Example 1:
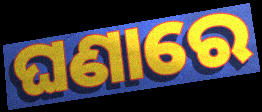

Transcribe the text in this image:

ଘଣାରେ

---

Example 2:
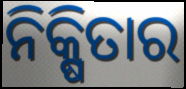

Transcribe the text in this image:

ନିକ୍ଷିତାର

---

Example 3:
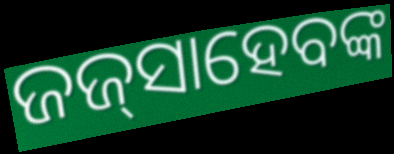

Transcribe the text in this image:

ଜଜ୍‌ସାହେବଙ୍କ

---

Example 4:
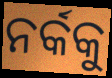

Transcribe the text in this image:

ନର୍କକୁ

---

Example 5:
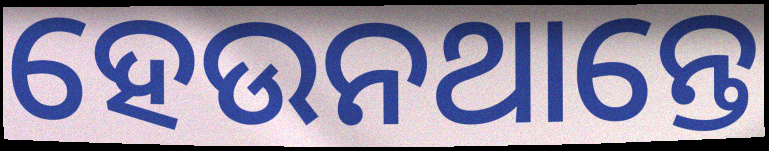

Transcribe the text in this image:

ହେଉନଥାନ୍ତେ